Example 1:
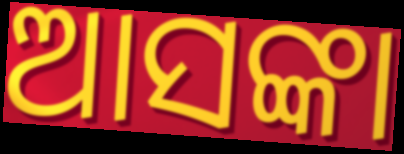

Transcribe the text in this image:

ଆସଙ୍କା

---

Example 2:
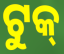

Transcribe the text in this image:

ଟୁକ୍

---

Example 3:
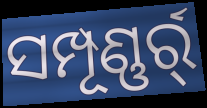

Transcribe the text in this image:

ସମ୍ପୂଣ୍ଣର୍ର୍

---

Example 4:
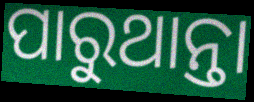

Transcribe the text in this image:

ପାରୁଥାନ୍ତା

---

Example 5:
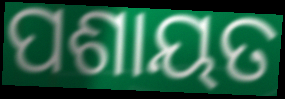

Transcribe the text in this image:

ପଶାୟତ